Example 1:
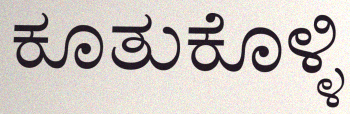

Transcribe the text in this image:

ಕೂತುಕೊಳ್ಳಿ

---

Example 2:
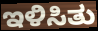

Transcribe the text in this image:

ಇಳಿಸಿತು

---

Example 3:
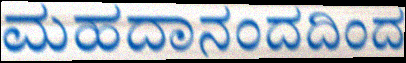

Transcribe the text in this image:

ಮಹದಾನಂದದಿಂದ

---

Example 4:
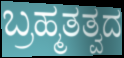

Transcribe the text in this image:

ಬ್ರಹ್ಮತತ್ವದ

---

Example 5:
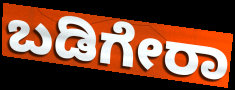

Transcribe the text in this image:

ಬಡಿಗೇರಾ